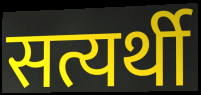
सत्यर्थी